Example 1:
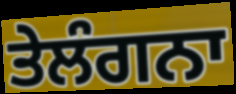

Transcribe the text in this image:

ਤੇਲੰਗਨਾ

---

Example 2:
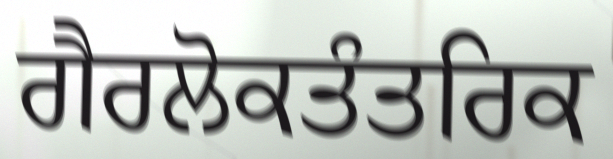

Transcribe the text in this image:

ਗੈਰਲੋਕਤੰਤਰਿਕ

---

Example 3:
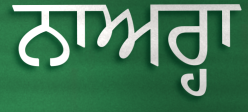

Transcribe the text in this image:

ਨਾਅਰ੍ਹਾ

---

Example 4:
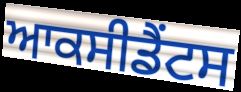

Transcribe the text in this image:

ਆਕਸੀਡੈਂਟਸ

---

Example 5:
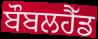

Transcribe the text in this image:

ਬੌਬਲਹੈੱਡ